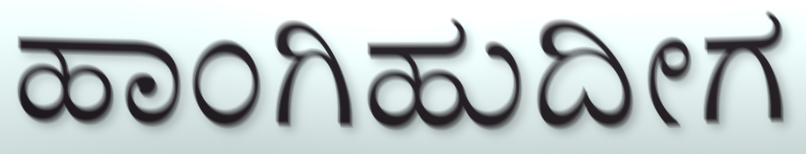
ಹಾಂಗಿಹುದೀಗ